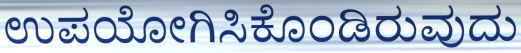
ಉಪಯೋಗಿಸಿಕೊಂಡಿರುವುದು